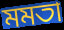
মমতা